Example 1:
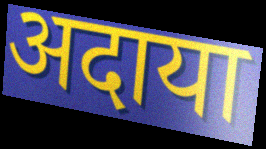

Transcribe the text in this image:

अदाया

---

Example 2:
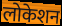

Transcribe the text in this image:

लोकेशन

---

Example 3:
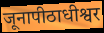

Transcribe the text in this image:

जूनापीठाधीश्वर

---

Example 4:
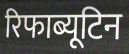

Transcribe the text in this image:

रिफाब्यूटिन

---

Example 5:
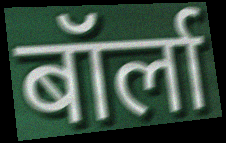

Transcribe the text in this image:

बॉर्ला